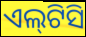
ଏଲ୍‌ଟିସି